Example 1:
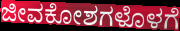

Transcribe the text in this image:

ಜೀವಕೋಶಗಳೊಳಗೆ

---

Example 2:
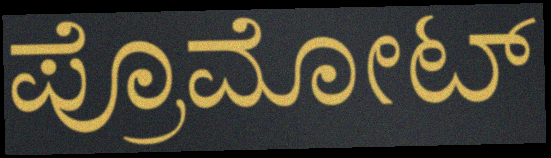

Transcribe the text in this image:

ಪ್ರೊಮೋಟ್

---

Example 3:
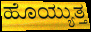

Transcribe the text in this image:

ಹೊಯ್ಯುತ್ತ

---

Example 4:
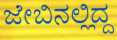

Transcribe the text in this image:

ಜೇಬಿನಲ್ಲಿದ್ದ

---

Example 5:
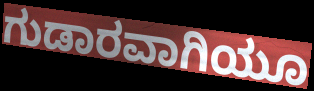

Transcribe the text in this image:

ಗುಡಾರವಾಗಿಯೂ